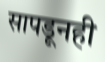
सापडूनही